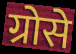
ग्रोसे